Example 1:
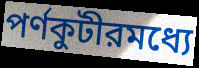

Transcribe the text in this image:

পর্ণকুটীরমধ্যে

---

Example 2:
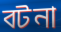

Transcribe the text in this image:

বটনা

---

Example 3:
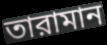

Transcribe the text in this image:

তারামান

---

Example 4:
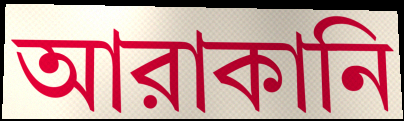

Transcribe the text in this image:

আরাকানি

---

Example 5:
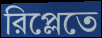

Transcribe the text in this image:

রিপ্লেতে